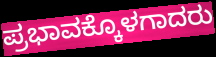
ಪ್ರಭಾವಕ್ಕೊಳಗಾದರು